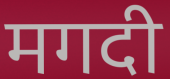
मगदी